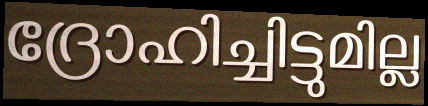
ദ്രോഹിച്ചിട്ടുമില്ല